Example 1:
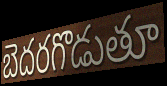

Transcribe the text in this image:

బెదరగొడుతూ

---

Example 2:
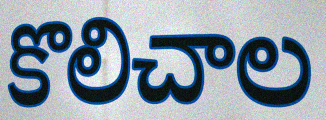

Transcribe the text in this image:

కొలిచాల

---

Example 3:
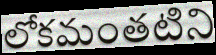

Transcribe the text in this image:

లోకమంతటిని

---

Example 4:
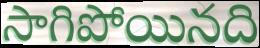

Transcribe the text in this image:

సాగిపోయినది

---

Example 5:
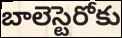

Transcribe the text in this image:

బాలెస్టెరోకు